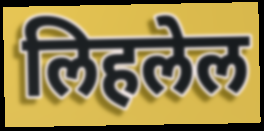
लिहलेल